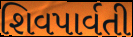
શિવપાર્વતી